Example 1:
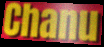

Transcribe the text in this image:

Chanu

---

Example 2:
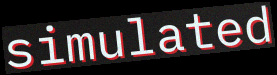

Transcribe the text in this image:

simulated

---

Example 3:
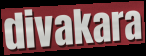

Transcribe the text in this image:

divakara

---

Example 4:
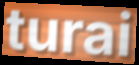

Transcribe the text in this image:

turai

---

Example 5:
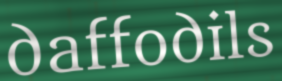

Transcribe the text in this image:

daffodils